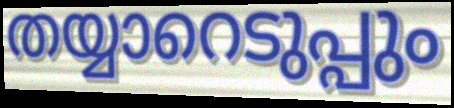
തയ്യാറെടുപ്പും